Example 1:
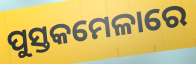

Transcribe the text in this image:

ପୁସ୍ତକମେଳାରେ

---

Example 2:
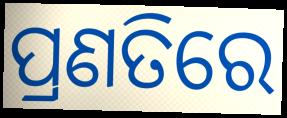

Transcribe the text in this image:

ପ୍ରଣତିରେ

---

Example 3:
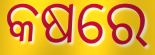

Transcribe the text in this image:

କଷରେ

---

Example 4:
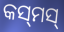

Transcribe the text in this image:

କସ୍‌ମସ୍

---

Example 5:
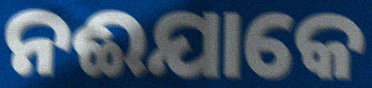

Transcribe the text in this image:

ନଈଯାକେ